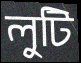
লুটি